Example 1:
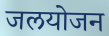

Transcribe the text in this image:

जलयोजन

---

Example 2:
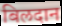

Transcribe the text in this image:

बिलदान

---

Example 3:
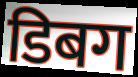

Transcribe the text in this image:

डिबग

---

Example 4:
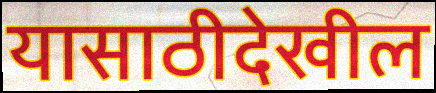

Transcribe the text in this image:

यासाठीदेखील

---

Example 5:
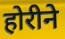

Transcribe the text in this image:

होरीने